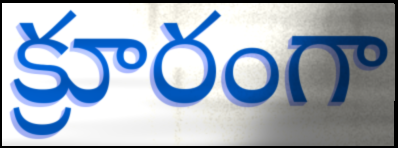
క్రూరంగా